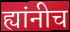
ह्यांनीच